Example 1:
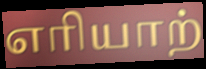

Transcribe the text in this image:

எரியாற்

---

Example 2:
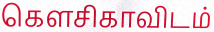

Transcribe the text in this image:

கௌசிகாவிடம்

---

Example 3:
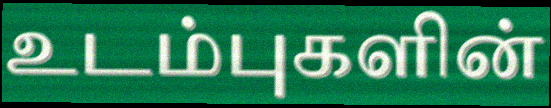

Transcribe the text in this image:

உடம்புகளின்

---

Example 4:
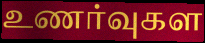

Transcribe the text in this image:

உணர்வுகள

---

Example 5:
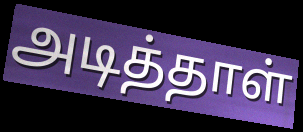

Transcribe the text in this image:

அடித்தாள்